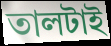
তালটাই